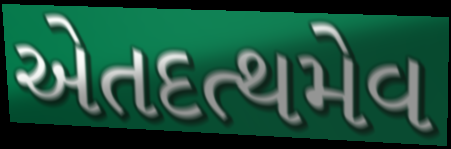
એતદત્થમેવ